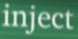
inject